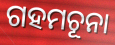
ଗହମଚୂନା